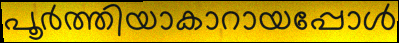
പൂർത്തിയാകാറായപ്പോൾ